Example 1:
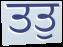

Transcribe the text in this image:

ਤਤੁ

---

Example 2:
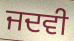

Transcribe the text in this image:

ਜਦਵੀ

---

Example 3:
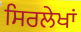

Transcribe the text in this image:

ਸਿਰਲੇਖਾਂ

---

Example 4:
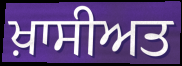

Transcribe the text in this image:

ਖ਼ਾਸੀਅਤ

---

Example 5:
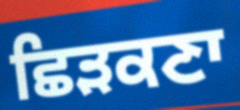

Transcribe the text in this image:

ਛਿੜਕਣਾ